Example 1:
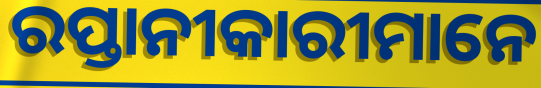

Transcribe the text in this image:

ରପ୍ତାନୀକାରୀମାନେ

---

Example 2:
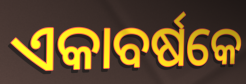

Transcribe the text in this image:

ଏକାବର୍ଷକେ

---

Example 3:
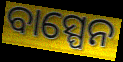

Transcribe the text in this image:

ବାସ୍ପେନ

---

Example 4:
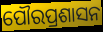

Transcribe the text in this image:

ପୌରପ୍ରଶାସନ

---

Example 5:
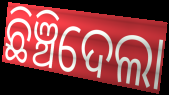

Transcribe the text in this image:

ଛିଞ୍ଚିଦେଲା